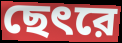
ছেৎরে